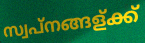
സ്വപ്നങ്ങള്ക്ക്